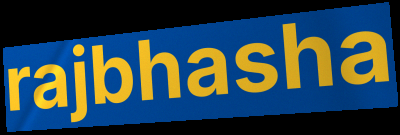
rajbhasha